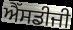
ਐੱਸਡੀਜੀ